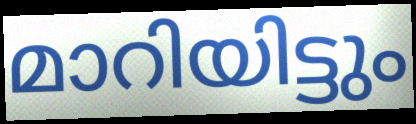
മാറിയിട്ടും